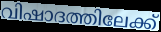
വിഷാദത്തിലേക്ക്